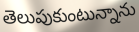
తెలుపుకుంటున్నాను